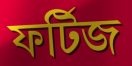
ফর্টিজ